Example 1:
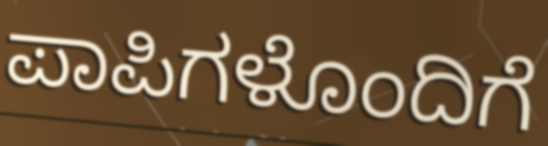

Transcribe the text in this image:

ಪಾಪಿಗಳೊಂದಿಗೆ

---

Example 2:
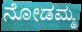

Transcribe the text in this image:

ನೋಡಮ್ಮ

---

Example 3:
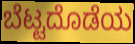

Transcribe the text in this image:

ಬೆಟ್ಟದೊಡೆಯ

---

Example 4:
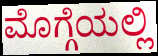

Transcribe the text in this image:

ಮೊಗ್ಗೆಯಲ್ಲಿ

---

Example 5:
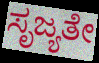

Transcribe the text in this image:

ಸೃಜ್ಯತೇ